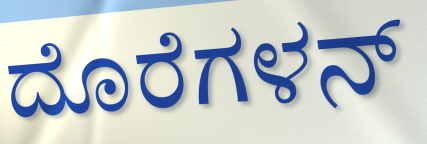
ದೊರೆಗಳನ್